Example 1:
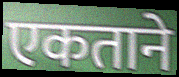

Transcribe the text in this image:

एकताने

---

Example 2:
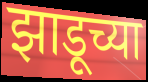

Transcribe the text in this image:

झाडूच्या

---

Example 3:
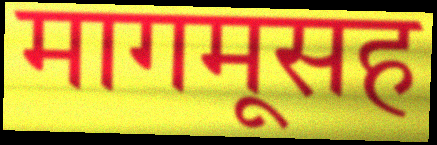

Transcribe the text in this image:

मागमूसह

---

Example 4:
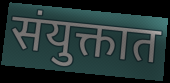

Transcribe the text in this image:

संयुक्तात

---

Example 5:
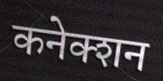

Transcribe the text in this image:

कनेक्शन